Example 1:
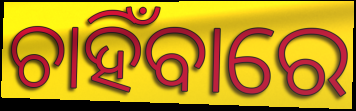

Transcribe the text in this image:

ଚାହିଁବାରେ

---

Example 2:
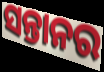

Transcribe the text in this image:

ସନ୍ତାନର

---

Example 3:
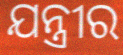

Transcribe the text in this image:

ଯନ୍ତ୍ରୀର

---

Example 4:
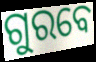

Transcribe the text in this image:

ଗୁରବେ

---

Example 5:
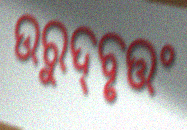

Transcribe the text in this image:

ଉରୁଦ୍‌ବୃତ୍ତଂ